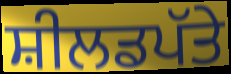
ਸ਼ੀਲਡਪੱਤੇ